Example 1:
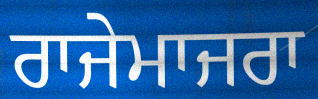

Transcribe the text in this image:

ਰਾਜੇਮਾਜਰਾ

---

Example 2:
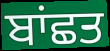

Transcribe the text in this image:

ਬਾਂਛਤ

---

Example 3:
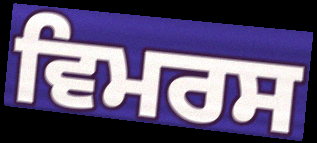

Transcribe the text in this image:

ਵਿਮਰਸ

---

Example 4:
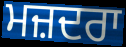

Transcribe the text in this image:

ਮਜ਼ਦਰਾ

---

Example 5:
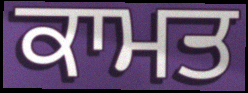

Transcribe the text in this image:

ਕਾਮਤ